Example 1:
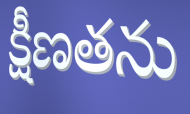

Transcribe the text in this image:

క్షీణతను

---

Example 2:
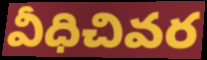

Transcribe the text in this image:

వీధిచివర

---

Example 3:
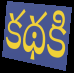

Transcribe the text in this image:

కథకి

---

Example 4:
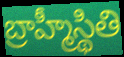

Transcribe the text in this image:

బ్రాహ్మీస్థితి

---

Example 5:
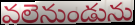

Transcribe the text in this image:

వలెనుండును